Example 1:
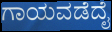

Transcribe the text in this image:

ಗಾಯವಡೆದೈ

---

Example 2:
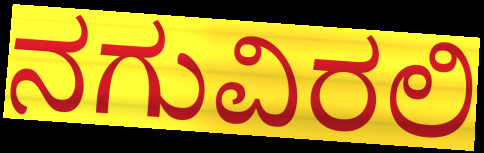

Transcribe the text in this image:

ನಗುವಿರಲಿ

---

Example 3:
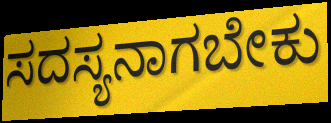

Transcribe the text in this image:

ಸದಸ್ಯನಾಗಬೇಕು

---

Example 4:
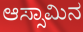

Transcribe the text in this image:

ಆಸ್ಸಾಮಿನ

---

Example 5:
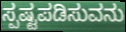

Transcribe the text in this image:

ಸ್ಪಷ್ಟಪಡಿಸುವನು